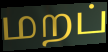
மறப்